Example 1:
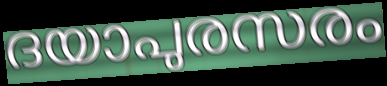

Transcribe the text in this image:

ദയാപുരസരം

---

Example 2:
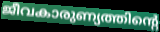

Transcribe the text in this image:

ജീവകാരുണ്യത്തിന്റെ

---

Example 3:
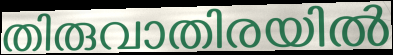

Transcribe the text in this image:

തിരുവാതിരയിൽ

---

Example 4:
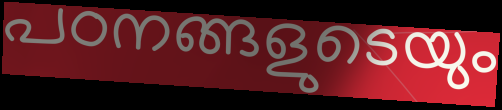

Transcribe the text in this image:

പഠനങ്ങളുടെയും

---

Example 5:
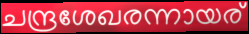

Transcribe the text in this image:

ചന്ദ്രശേഖരന്നായര്